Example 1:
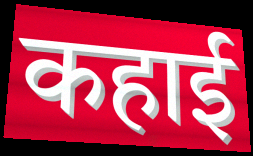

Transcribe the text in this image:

कहाई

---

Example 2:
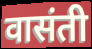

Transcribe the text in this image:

वासंती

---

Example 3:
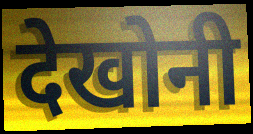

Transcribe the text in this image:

देखोनी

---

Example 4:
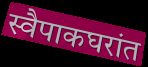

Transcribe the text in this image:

स्वैपाकघरांत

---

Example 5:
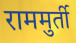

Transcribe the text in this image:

राममुर्ती